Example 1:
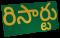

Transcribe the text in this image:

రిసార్టు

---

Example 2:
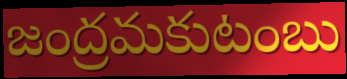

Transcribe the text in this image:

జంద్రమకుటంబు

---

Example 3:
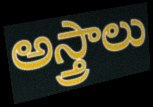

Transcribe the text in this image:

అస్త్రాలు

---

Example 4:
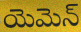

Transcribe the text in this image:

యెమెన్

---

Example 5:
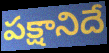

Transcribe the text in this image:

పక్షానిదే